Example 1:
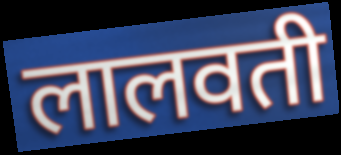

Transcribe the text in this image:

लालवती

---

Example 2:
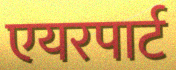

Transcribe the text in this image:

एयरपार्ट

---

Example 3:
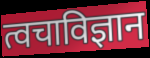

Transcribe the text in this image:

त्वचाविज्ञान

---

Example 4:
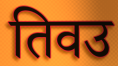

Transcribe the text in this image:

तिवउ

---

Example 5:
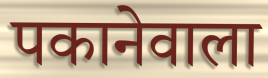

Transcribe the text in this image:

पकानेवाला